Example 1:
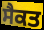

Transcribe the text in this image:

ਸੈਕਤ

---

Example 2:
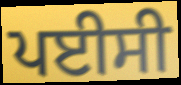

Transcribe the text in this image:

ਪਈਸੀ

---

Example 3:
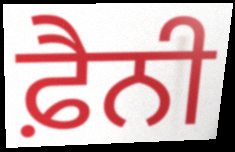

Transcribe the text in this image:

ਫ਼ੈਨੀ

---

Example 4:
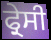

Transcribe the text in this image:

ਫ੍ਰੇਸੀ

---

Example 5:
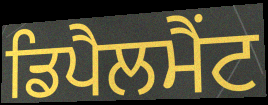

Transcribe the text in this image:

ਡਿਪੈਲਮੈਂਟ